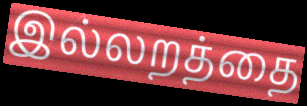
இல்லறத்தை